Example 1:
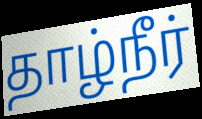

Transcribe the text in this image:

தாழ்நீர்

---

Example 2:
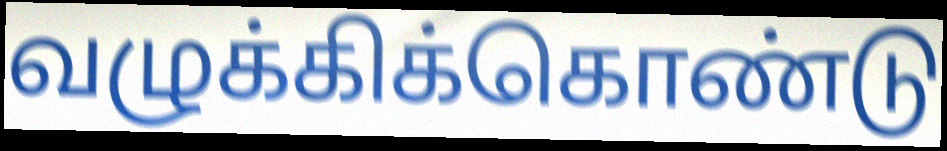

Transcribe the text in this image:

வழுக்கிக்கொண்டு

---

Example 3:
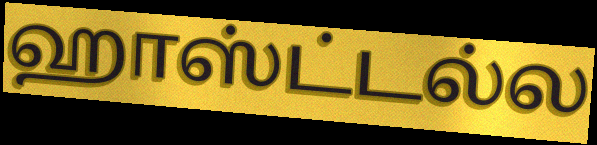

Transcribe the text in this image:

ஹாஸ்ட்டல்ல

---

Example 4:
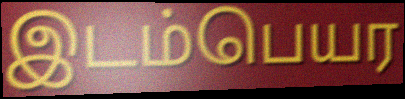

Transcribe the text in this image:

இடம்பெயர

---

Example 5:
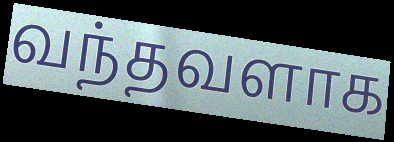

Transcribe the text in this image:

வந்தவளாக